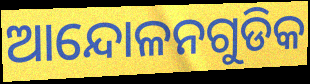
ଆନ୍ଦୋଳନଗୁଡିକ